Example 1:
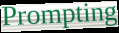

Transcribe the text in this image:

Prompting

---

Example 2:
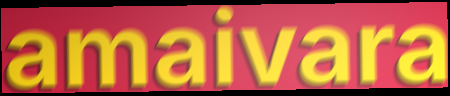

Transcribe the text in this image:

amaivara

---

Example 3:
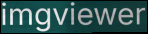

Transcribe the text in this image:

imgviewer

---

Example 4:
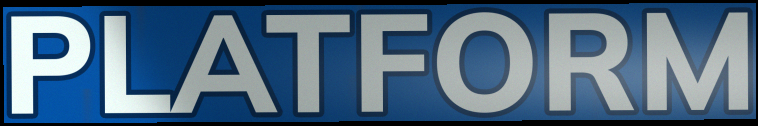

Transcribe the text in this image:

PLATFORM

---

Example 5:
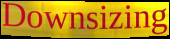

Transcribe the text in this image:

Downsizing